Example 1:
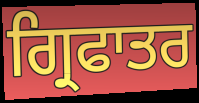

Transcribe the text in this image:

ਗ੍ਰਿਫਾਤਰ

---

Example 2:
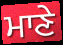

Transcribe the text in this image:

ਮਾਣੇ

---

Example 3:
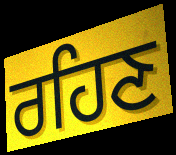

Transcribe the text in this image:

ਰਹਿਣ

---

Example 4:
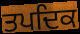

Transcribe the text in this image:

ਤਪਦਿਕ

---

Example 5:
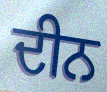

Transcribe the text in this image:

ਦੀਨ